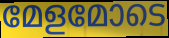
മേളമോടെ